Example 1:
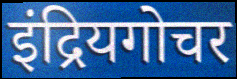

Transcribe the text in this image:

इंद्रियगोचर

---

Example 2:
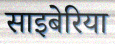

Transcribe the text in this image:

साइबेरिया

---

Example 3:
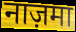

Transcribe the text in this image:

नाज़मा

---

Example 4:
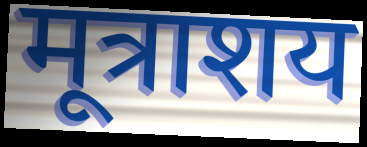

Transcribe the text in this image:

मूत्राशय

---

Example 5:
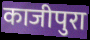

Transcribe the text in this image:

काजीपुरा